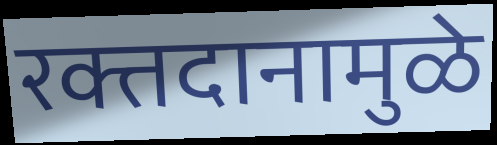
रक्तदानामुळे